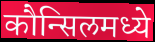
कौन्सिलमध्ये